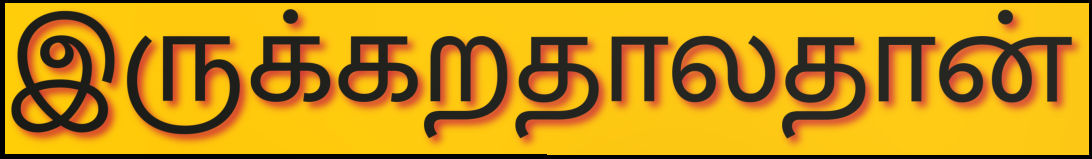
இருக்கறதாலதான்